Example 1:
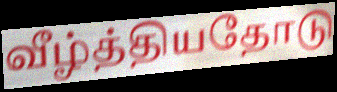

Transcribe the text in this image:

வீழ்த்தியதோடு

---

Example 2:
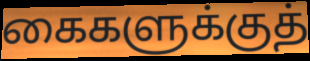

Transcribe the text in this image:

கைகளுக்குத்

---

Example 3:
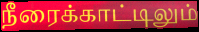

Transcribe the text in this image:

நீரைக்காட்டிலும்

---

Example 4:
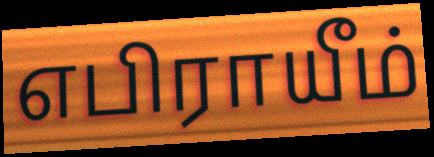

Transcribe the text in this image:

எபிராயீம்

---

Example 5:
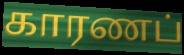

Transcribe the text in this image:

காரணப்